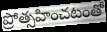
ప్రోత్సహించటంతో